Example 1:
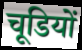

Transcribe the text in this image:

चूडियों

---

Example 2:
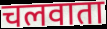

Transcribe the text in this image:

चलवाता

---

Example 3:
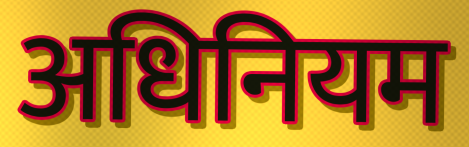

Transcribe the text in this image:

अधिनियम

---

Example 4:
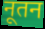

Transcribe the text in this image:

नूतन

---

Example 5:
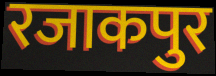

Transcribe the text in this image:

रजाकपुर